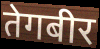
तेगबीर